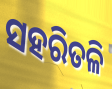
ସହରିତଳି